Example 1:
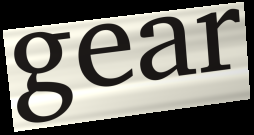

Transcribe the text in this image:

gear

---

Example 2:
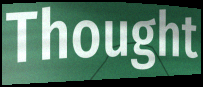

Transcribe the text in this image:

Thought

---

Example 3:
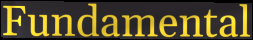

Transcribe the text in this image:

Fundamental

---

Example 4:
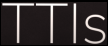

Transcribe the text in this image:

TTIs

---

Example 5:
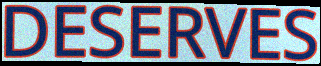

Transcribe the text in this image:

DESERVES